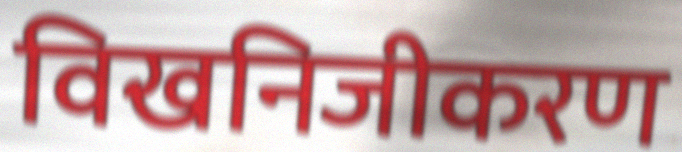
विखनिजीकरण